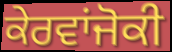
ਕੇਰਵਾਂਜੋਕੀ